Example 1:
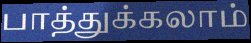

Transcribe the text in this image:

பாத்துக்கலாம்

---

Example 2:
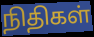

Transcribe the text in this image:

நிதிகள்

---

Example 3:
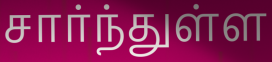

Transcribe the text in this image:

சார்ந்துள்ள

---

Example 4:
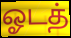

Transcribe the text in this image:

ஓடத்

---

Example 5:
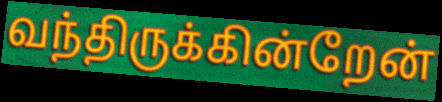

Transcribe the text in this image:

வந்திருக்கின்றேன்